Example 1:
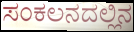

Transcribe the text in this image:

ಸಂಕಲನದಲ್ಲಿನ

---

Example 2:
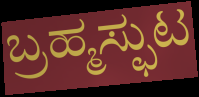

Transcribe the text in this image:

ಬ್ರಹ್ಮಸ್ಫುಟ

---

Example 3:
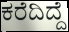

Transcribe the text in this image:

ಕರೆದಿದ್ದೆ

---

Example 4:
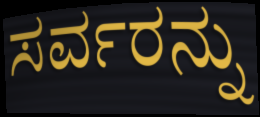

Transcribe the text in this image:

ಸರ್ವರನ್ನು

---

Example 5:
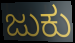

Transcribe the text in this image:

ಜುಕು